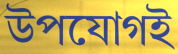
উপযোগই